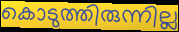
കൊടുത്തിരുന്നില്ല